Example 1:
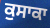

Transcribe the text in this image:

ਕੁਸਾਕਾ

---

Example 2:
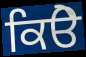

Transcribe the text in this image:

ਕਿੳੇ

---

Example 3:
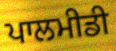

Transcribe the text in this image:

ਪਾਲਮੀਡੀ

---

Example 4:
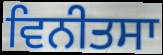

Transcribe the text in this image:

ਵਿਨੀਤਸਾ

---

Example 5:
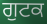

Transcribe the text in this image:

ਗੁਟਕ